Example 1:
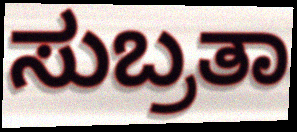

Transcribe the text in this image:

ಸುಬ್ರತಾ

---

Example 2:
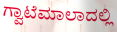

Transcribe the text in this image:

ಗ್ವಾಟೆಮಾಲಾದಲ್ಲಿ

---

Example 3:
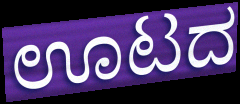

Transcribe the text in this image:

ಊಟದ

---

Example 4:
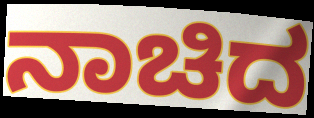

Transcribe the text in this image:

ನಾಚಿದ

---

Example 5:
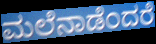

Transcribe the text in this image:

ಮಲೆನಾಡೆಂದರೆ